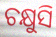
ଚକ୍ଷୁସି